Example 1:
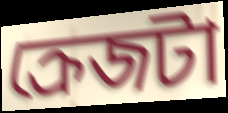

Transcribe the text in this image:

ক্রেজটা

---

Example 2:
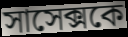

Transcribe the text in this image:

সাসেক্সকে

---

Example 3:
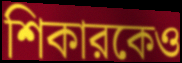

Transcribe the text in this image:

শিকারকেও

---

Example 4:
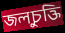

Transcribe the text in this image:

জলচুক্তি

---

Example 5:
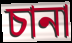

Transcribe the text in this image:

চানা